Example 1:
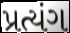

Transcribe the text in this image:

પ્રત્યંગ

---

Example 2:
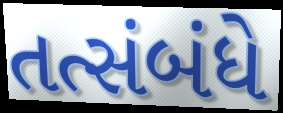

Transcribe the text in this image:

તત્સંબંધે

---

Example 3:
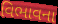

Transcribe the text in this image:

વિભાવના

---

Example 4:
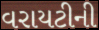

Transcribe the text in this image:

વરાયટીની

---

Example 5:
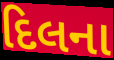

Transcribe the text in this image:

દિલના